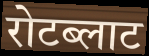
रोटब्लाट